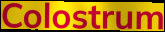
Colostrum